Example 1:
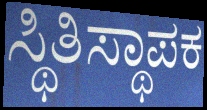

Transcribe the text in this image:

ಸ್ಥಿತಿಸ್ಥಾಪಕ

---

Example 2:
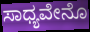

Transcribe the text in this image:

ಸಾಧ್ಯವೇನೊ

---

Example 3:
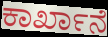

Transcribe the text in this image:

ಕಾರ್ಖಾನೆ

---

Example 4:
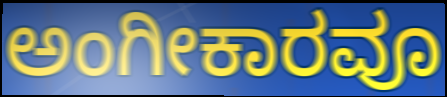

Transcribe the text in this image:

ಅಂಗೀಕಾರವೂ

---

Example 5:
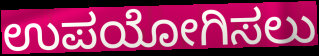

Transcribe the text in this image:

ಉಪಯೋಗಿಸಲು